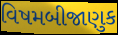
વિષમબીજાણુક